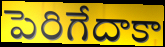
పెరిగేదాకా